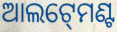
ଆଲଟ୍‍ମେଣ୍ଟ